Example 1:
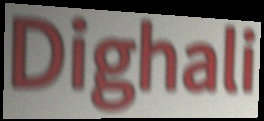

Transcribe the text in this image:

Dighali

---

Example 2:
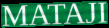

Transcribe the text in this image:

MATAJI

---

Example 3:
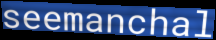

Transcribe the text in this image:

seemanchal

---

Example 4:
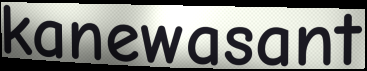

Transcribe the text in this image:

kanewasant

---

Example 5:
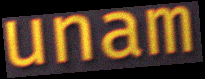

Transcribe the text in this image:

unam